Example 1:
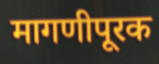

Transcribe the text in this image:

मागणीपूरक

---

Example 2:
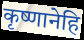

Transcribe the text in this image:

कृष्णानेहि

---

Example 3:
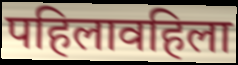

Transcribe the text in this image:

पहिलावहिला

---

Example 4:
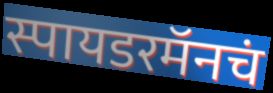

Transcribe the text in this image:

स्पायडरमॅनचं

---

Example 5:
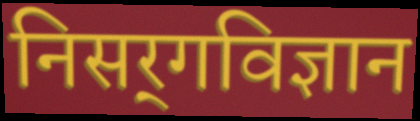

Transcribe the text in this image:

निसर्गविज्ञान